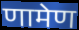
णामेण